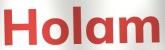
Holam